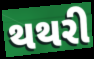
થથરી